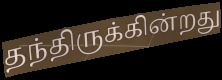
தந்திருக்கின்றது